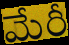
మేరీ